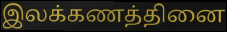
இலக்கணத்தினை